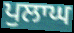
ਪੁਲਾਘ